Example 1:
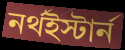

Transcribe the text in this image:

নর্থইস্টার্ন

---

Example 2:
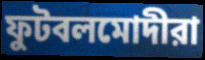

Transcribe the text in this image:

ফুটবলমোদীরা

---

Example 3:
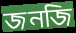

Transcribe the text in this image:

জনজি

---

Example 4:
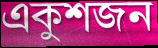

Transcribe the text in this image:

একুশজন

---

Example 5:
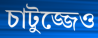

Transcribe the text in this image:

চাটুজ্জেও